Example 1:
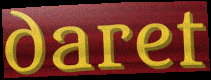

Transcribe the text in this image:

daret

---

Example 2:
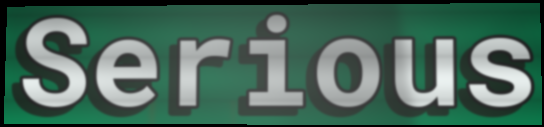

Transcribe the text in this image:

Serious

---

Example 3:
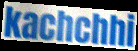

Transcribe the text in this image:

kachchhi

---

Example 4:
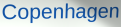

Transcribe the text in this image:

Copenhagen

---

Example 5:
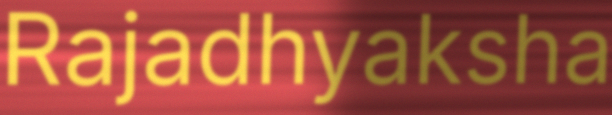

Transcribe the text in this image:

Rajadhyaksha